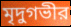
মৃদুগভীর